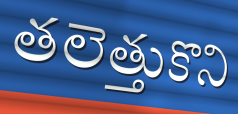
తలెత్తుకొని